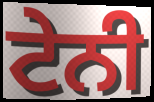
ਟੇਨੀ